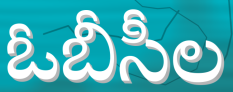
ఓబీసీల